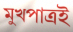
মুখপাত্রই